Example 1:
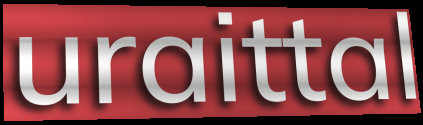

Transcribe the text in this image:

uraittal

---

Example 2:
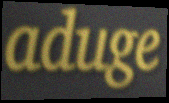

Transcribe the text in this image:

aduge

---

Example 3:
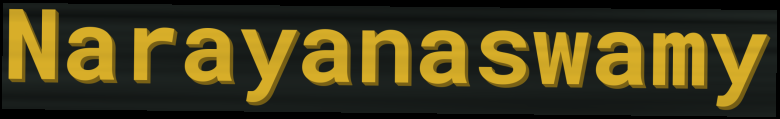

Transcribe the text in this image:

Narayanaswamy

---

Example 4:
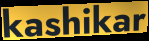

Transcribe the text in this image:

kashikar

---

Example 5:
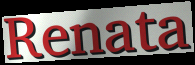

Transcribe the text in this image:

Renata